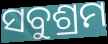
ସବୁଶ୍ରମ